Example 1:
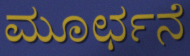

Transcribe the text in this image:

ಮೂರ್ಛನೆ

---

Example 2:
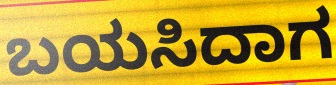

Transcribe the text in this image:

ಬಯಸಿದಾಗ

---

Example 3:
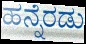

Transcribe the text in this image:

ಹನ್ನೆರಡು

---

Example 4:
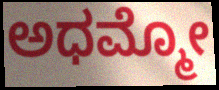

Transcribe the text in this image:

ಅಧಮ್ಮೋ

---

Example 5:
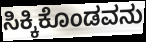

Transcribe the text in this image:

ಸಿಕ್ಕಿಕೊಂಡವನು